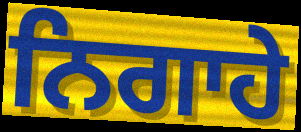
ਨਿਗਾਹੇ